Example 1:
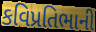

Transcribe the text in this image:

કવિપ્રતિભાની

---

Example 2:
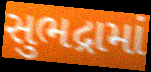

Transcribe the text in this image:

સુભદ્રામાં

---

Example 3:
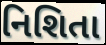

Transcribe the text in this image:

નિશિતા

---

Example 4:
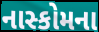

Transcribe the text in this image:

નાસ્કોમના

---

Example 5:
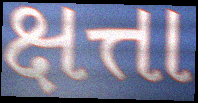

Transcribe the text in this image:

ક્ષત્તા